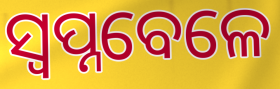
ସ୍ଵପ୍ନବେଳେ